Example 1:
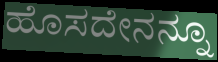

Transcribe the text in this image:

ಹೊಸದೇನನ್ನೂ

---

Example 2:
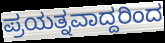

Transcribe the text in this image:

ಪ್ರಯತ್ನವಾದ್ದರಿಂದ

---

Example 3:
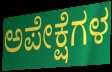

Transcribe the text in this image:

ಅಪೇಕ್ಷೆಗಳ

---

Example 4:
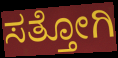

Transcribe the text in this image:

ಸತ್ತೋಗಿ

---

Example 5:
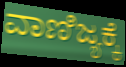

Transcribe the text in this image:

ವಾಣಿಜ್ಯಕ್ಕೆ